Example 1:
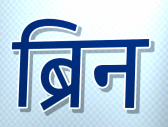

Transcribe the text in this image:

ब्रिन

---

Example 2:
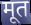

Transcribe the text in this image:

मूत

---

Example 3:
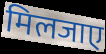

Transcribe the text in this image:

मिलजाए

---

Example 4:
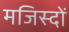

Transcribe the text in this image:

मजिस्दों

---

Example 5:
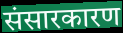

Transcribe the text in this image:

संसारकारण